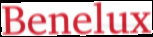
Benelux